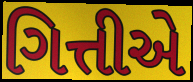
ગિત્તીએ